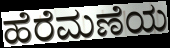
ಹೆರೆಮಣೆಯ